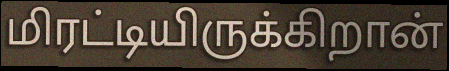
மிரட்டியிருக்கிறான்